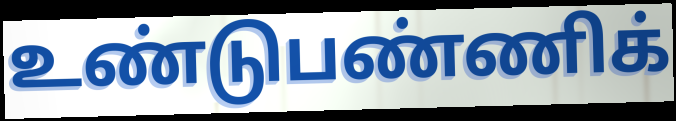
உண்டுபண்ணிக்